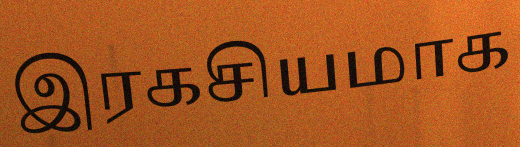
இரகசியமாக